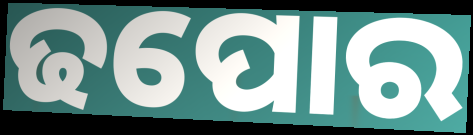
ଢପୋର